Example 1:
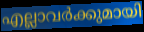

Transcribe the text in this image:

എല്ലാവർക്കുമായി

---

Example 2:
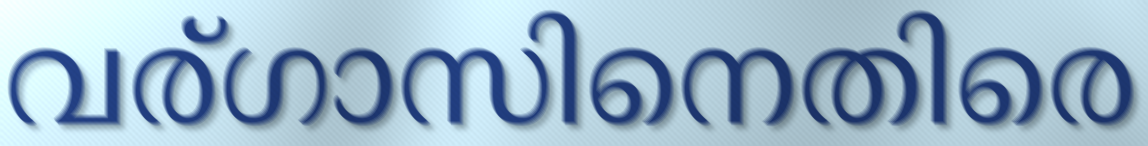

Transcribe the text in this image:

വര്ഗാസിനെതിരെ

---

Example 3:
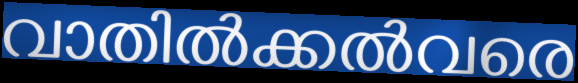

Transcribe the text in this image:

വാതിൽക്കൽവരെ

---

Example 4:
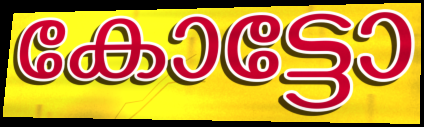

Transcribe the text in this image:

കോട്ടോ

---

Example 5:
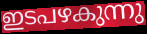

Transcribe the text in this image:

ഇടപഴകുന്നു